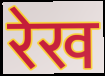
रेख